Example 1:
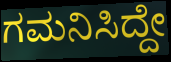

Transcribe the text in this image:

ಗಮನಿಸಿದ್ದೇ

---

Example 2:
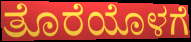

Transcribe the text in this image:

ತೊರೆಯೊಳಗೆ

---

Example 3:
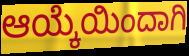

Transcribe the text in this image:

ಆಯ್ಕೆಯಿಂದಾಗಿ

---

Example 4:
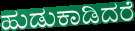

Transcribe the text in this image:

ಹುಡುಕಾಡಿದರೆ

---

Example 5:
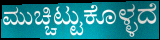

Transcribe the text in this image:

ಮುಚ್ಚಿಟ್ಟುಕೊಳ್ಳದೆ